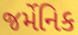
જર્મેનિક